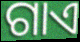
ଗାଏ